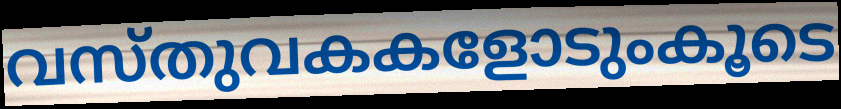
വസ്തുവകകളോടുംകൂടെ